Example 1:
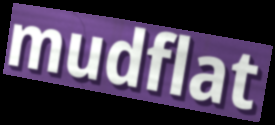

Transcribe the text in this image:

mudflat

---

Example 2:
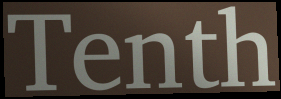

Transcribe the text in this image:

Tenth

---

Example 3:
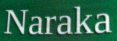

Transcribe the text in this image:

Naraka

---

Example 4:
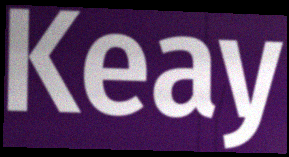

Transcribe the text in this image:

Keay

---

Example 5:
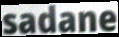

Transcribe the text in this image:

sadane